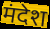
मंदेश